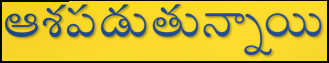
ఆశపడుతున్నాయి